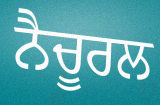
ਨੈਚੂਰਲ